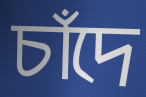
চাঁদে